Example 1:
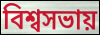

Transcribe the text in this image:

বিশ্বসভায়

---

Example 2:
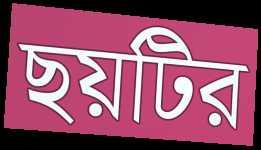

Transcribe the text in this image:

ছয়টির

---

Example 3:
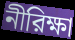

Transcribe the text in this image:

নীরিক্ষা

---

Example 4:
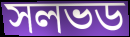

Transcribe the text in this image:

সলভড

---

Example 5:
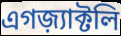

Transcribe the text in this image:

এগজ়্যাক্টলি